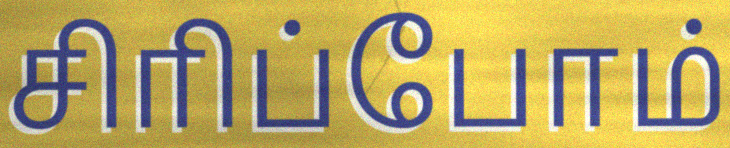
சிரிப்போம்